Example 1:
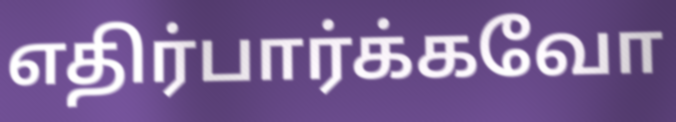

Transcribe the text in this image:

எதிர்பார்க்கவோ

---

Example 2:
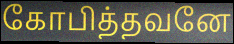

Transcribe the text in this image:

கோபித்தவனே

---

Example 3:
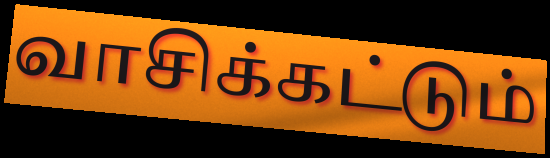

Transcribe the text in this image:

வாசிக்கட்டும்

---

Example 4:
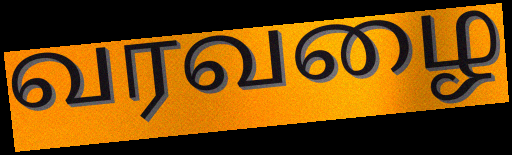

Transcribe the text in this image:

வரவழை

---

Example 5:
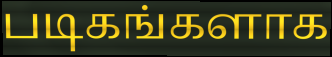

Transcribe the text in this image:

படிகங்களாக